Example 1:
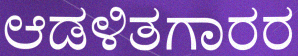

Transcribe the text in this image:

ಆಡಳಿತಗಾರರ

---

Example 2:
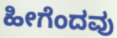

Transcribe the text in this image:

ಹೀಗೆಂದವು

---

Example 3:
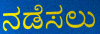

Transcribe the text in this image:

ನಡೆಸಲು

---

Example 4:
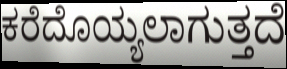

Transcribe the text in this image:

ಕರೆದೊಯ್ಯಲಾಗುತ್ತದೆ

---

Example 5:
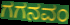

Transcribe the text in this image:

ಗಗನವಂ